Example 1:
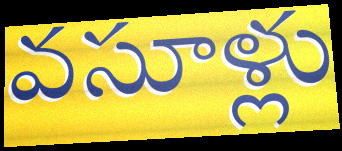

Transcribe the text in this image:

వసూళ్లు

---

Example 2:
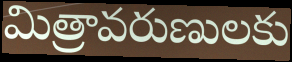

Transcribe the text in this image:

మిత్రావరుణులకు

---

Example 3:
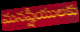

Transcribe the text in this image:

మనష్షీయులకు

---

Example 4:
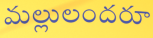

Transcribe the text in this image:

మల్లులందరూ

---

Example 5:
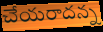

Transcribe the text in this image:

చేయరాదన్న